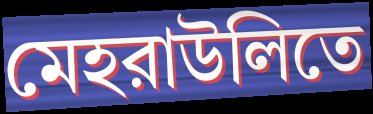
মেহরাউলিতে